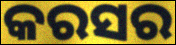
କରସର